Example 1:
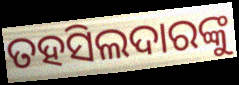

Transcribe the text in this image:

ତହସିଲଦାରଙ୍କୁ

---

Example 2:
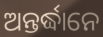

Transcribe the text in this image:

ଅନ୍ତର୍ଦ୍ଧାନେ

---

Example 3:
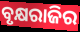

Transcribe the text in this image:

ବୃକ୍ଷରାଜିର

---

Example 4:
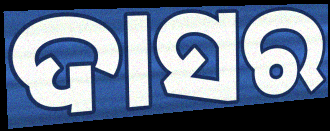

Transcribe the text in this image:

ଦାସର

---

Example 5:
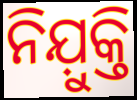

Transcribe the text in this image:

ନିଯ଼ୁକ୍ତି